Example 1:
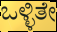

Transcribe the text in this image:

ಒಳ್ಳಿತೇ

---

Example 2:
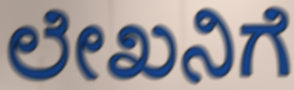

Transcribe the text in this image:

ಲೇಖನಿಗೆ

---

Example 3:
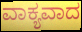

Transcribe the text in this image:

ವಾಕ್ಯವಾದ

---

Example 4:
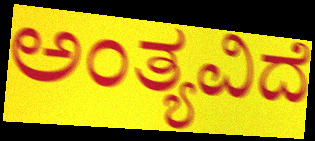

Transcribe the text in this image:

ಅಂತ್ಯವಿದೆ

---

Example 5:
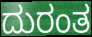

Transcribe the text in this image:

ದುರಂತ